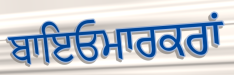
ਬਾਇਓਮਾਰਕਰਾਂ